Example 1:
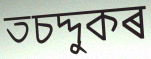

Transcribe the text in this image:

তচদ্দুকৰ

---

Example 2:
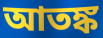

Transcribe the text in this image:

আতঙ্ক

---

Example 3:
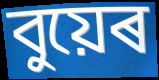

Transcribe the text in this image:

বুয়েৰ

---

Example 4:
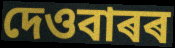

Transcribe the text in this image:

দেওবাৰৰ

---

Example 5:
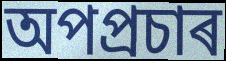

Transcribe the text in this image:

অপপ্ৰচাৰ